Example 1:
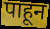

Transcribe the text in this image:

पाहून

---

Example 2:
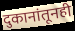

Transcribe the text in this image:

दुकानांतूनही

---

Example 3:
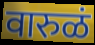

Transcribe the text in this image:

वारुळं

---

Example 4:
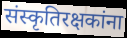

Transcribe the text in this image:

संस्कृतिरक्षकांना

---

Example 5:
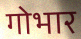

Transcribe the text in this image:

गोभार